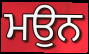
ਮਉਨ